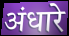
अंधारे